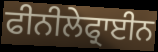
ਫੀਨੀਲੇਫ੍ਰਾਈਨ